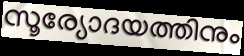
സൂര്യോദയത്തിനും